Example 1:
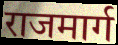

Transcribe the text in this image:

राजमार्ग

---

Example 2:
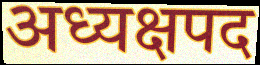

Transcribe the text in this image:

अध्यक्षपद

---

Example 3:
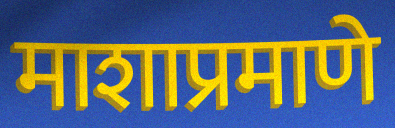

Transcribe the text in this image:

माशाप्रमाणे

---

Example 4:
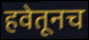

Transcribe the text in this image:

हवेतूनच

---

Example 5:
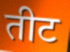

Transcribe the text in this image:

तीट